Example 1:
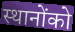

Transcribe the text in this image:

स्थानोंको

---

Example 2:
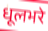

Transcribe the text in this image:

धूलभरे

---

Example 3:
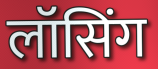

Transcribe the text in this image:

लॉसिंग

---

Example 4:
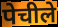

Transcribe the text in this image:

पेचीले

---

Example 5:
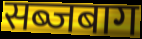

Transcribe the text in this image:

सब्ज़बाग